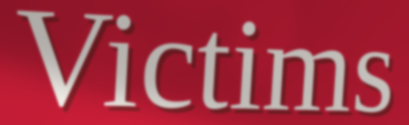
Victims